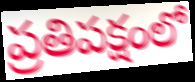
ప్రతిపక్షంలో